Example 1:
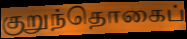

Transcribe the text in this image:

குறுந்தொகைப்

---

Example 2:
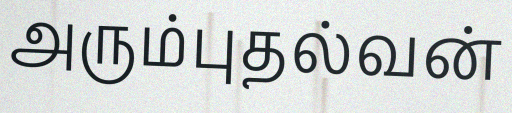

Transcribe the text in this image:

அரும்புதல்வன்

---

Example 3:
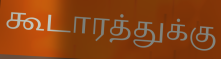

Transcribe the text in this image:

கூடாரத்துக்கு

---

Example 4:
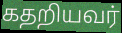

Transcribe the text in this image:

கதறியவர்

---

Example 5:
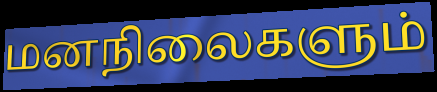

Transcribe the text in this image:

மனநிலைகளும்